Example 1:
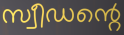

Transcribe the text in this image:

സ്വീഡന്റെ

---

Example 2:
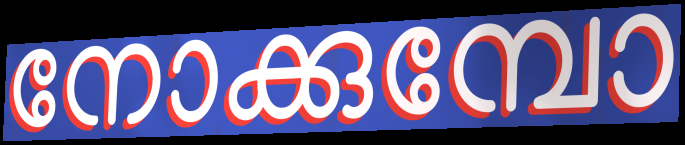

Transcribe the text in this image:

നോക്കുമ്പോ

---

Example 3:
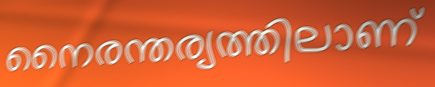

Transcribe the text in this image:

നൈരന്തര്യത്തിലാണ്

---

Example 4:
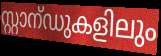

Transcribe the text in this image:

സ്റ്റാന്ഡുകളിലും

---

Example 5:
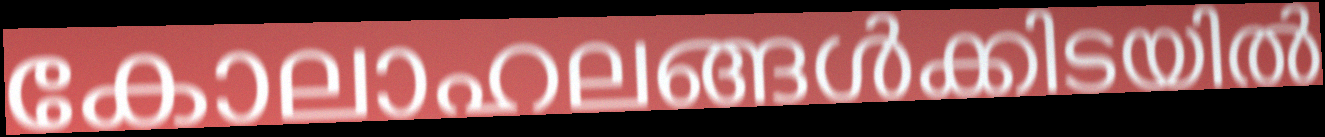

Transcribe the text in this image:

കോലാഹലങ്ങൾക്കിടയിൽ